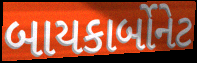
બાયકાર્બોનેટ